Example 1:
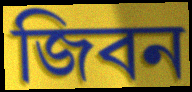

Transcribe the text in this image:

জিবন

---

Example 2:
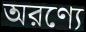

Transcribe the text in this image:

অরণ্যে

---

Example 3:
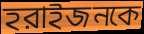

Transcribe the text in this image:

হরাইজনকে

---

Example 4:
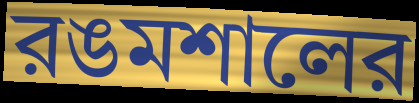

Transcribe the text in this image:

রঙমশালের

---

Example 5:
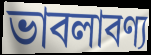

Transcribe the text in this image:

ভাবলাবণ্য